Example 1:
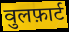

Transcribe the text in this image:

वुलफ़ार्ट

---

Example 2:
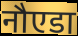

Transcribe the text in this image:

नौएडा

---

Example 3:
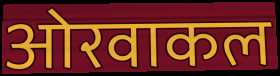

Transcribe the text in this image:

ओरवाकल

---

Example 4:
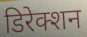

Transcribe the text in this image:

डिरेक्शन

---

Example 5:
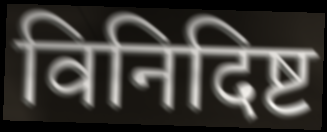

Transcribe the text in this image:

विनिदिष्ट